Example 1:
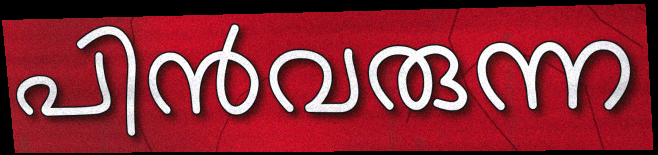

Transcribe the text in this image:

പിൻവരുന്ന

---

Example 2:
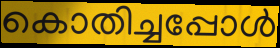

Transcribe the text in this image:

കൊതിച്ചപ്പോൾ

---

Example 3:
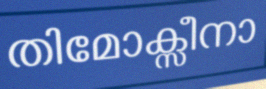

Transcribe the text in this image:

തിമോക്സീനാ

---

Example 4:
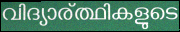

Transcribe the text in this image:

വിദ്യാര്ത്ഥികളുടെ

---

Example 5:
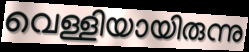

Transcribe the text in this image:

വെള്ളിയായിരുന്നു